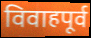
विवाहपूर्व